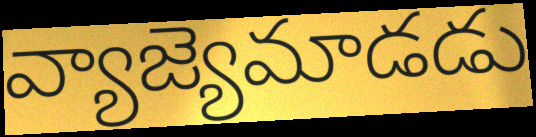
వ్యాజ్యెమాడడు